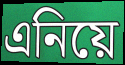
এনিয়ে